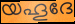
യഹൂദേ